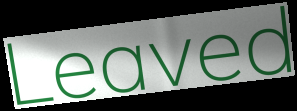
Leaved